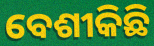
ବେଶୀକିଛି